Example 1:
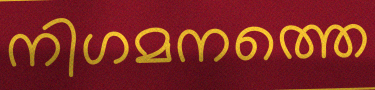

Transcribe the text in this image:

നിഗമനത്തെ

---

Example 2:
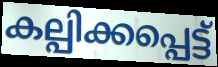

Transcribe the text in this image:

കല്പിക്കപ്പെട്ട്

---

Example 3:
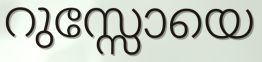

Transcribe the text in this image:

റുസ്സോയെ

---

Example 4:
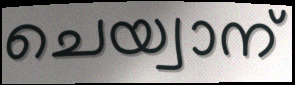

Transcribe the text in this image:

ചെയ്വാന്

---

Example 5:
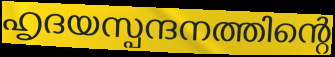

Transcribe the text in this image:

ഹൃദയസ്പന്ദനത്തിന്റെ